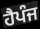
ਹੈਪੰਜ